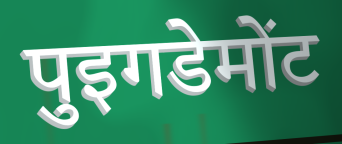
पुइगडेमोंट